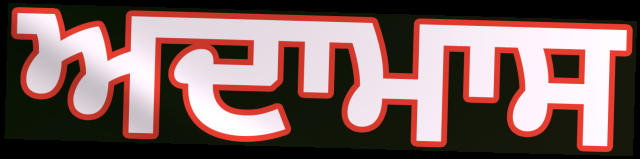
ਅਦਾਮਾਸ